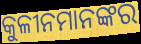
କୁଳୀନମାନଙ୍କର